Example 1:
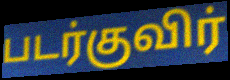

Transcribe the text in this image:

படர்குவிர்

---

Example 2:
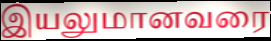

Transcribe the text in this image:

இயலுமானவரை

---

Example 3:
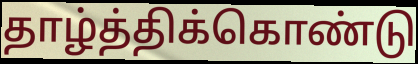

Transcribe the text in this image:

தாழ்த்திக்கொண்டு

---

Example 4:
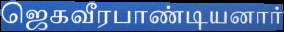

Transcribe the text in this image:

ஜெகவீரபாண்டியனார்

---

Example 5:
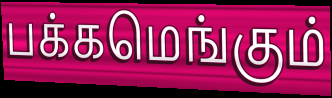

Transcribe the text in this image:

பக்கமெங்கும்